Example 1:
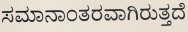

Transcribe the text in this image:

ಸಮಾನಾಂತರವಾಗಿರುತ್ತದೆ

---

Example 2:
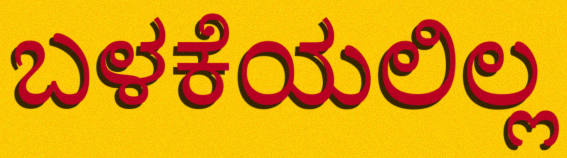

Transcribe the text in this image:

ಬಳಕೆಯಲಿಲ್ಲ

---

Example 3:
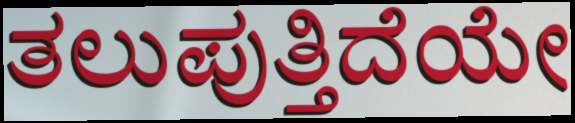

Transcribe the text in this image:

ತಲುಪುತ್ತಿದೆಯೇ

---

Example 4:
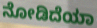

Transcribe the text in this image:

ನೋಡಿದೆಯಾ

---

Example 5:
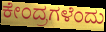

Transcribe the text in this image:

ಕೇಂದ್ರಗಳೆಂದು